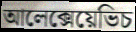
আলেক্সেয়েভিচ